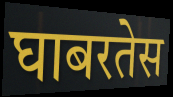
घाबरतेस